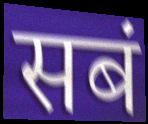
सबं